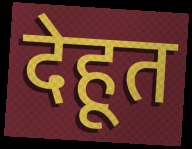
देहूत